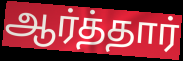
ஆர்த்தார்